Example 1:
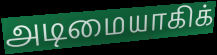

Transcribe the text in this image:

அடிமையாகிக்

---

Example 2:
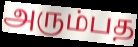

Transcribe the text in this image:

அரும்பத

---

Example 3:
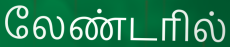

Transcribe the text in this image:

லேண்டரில்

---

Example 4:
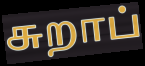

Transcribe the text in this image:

சுறாப்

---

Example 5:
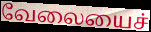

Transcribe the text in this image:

வேலையைச்